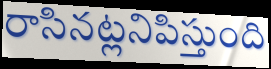
రాసినట్లనిపిస్తుంది